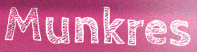
Munkres